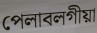
পেলাবলগীয়া